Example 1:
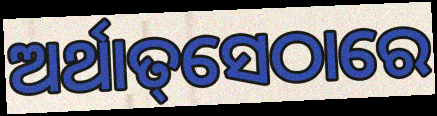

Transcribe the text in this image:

ଅର୍ଥାତ୍‌ସେଠାରେ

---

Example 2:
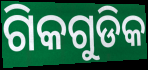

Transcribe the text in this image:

ଗିକଗୁଡିକ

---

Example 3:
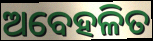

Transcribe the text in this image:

ଅବେହଳିତ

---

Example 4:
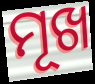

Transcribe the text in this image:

ମୂଖ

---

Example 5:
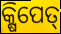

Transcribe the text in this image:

କ୍ଷିପେତ୍